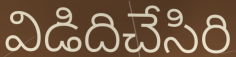
విడిదిచేసిరి